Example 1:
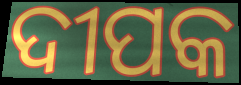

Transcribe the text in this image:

ଦୀପକ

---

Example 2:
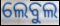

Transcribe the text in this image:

ଲେବୁଲ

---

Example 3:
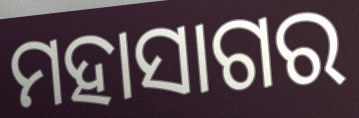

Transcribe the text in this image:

ମହାସାଗର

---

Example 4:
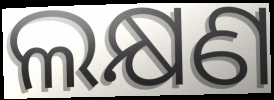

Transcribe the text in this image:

ଲକ୍ଷଣ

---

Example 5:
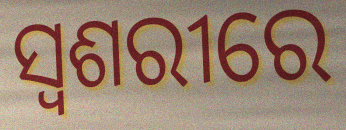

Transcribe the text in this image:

ସ୍ୱଶରୀରେ